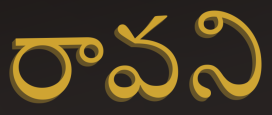
రావని